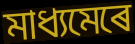
মাধ্যমেৰে